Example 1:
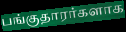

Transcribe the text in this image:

பங்குதாரர்களாக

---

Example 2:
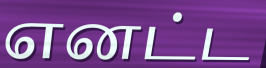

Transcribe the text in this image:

எனட்ட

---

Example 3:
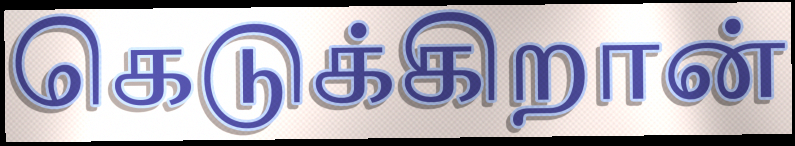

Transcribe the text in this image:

கெடுக்கிறான்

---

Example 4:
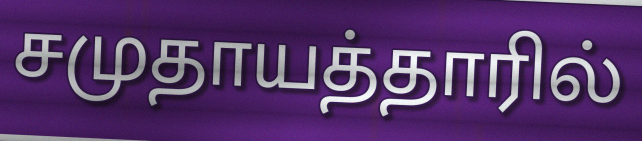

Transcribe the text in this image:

சமுதாயத்தாரில்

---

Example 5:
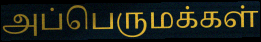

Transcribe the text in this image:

அப்பெருமக்கள்